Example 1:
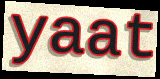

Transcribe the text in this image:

yaat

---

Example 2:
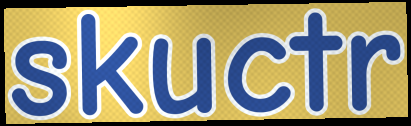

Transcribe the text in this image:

skuctr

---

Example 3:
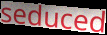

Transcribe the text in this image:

seduced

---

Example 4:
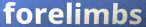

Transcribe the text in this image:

forelimbs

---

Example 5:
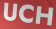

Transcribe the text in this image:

UCH